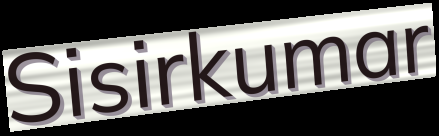
Sisirkumar